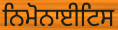
ਨਿਮੋਨਾਈਟਿਸ